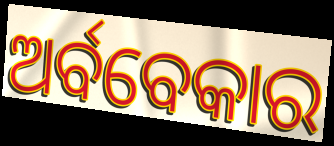
ଅର୍ବବେକାର